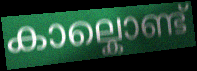
കാല്കൊണ്ട്